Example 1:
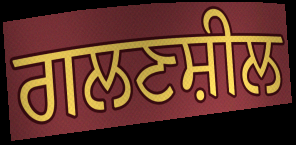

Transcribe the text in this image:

ਗਲਣਸ਼ੀਲ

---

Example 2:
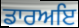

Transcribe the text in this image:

ਡਾਰਅਇ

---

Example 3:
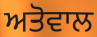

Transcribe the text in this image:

ਅਤੋਵਾਲ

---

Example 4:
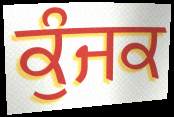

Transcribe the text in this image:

ਕੁੰਜਕ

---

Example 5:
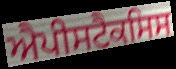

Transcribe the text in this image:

ਐਪੀਸਟੈਕਸਿਸ